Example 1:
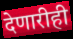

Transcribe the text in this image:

देणारीही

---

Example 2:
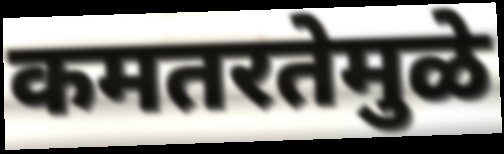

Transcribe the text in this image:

कमतरतेमुळे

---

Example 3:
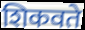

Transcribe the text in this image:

शिकवते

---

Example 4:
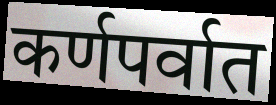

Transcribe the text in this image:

कर्णपर्वात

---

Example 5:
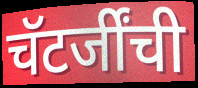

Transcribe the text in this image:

चॅटर्जींची